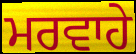
ਮਰਵਾਹੇ